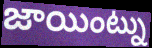
జాయింట్ను